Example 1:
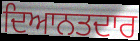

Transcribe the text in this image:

ਦਿਆਨਤਦਾਰ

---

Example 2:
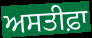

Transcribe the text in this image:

ਅਸਤੀਫ਼ਾ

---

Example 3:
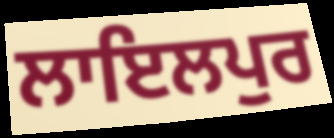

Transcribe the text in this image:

ਲਾਇਲਪੁਰ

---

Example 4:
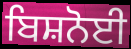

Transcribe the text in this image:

ਬਿਸ਼ਨੋਈ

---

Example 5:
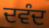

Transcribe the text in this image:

ਦਵੰਦ